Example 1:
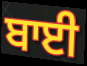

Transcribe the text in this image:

ਬਾਈ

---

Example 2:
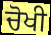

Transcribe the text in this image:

ਚੋਖੀ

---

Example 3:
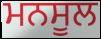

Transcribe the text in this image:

ਮਨਸੂਲ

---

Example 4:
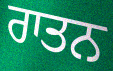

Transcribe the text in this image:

ਰਾਤਨ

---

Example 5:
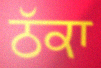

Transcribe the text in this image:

ਠੱਕਾ